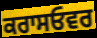
ਕਰਾਸਓਵਰ